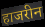
हाजरीन